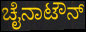
ಚೈನಾಟೌನ್